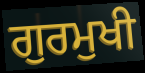
ਗੁਰਮੁਖੀ